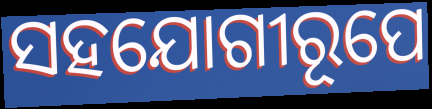
ସହଯୋଗୀରୂପେ